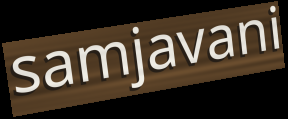
samjavani